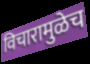
विचारामुळेच